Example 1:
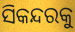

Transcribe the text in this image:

ସିକନ୍ଦରକୁ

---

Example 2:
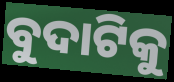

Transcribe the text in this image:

ବୁଦାଟିକୁ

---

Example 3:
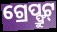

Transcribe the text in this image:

ଗ୍ରେପ୍ଫ୍ରୁଟ୍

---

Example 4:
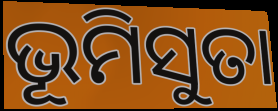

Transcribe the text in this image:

ଭୂମିସୁତା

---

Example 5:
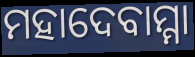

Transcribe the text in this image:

ମହାଦେବାମ୍ମା